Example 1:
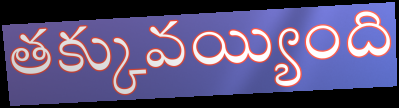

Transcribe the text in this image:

తక్కువయ్యింది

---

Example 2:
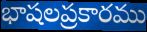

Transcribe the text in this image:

భాషలప్రకారము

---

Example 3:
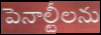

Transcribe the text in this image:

పెనాల్టీలను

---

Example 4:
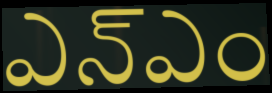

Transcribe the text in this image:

ఎన్ఎం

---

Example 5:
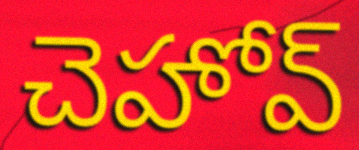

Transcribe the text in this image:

చెహోవ్